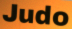
Judo